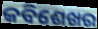
କବିଶେଖର